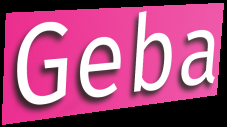
Geba